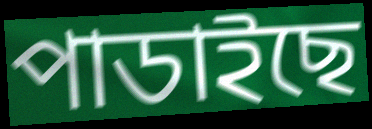
পাডাইছে